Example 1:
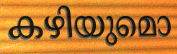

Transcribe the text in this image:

കഴിയുമൊ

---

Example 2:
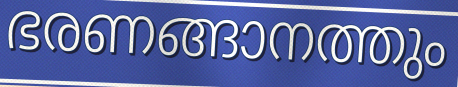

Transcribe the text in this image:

ഭരണങ്ങാനത്തും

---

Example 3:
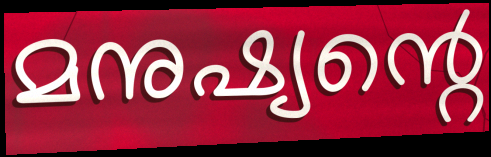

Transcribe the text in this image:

മനുഷ്യന്റെ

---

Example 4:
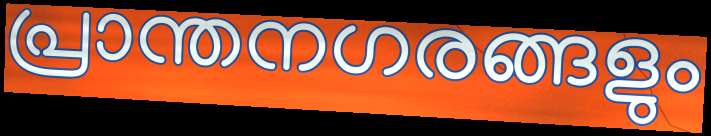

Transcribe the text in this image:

പ്രാന്തനഗരങ്ങളും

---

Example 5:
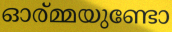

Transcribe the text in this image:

ഓര്മ്മയുണ്ടോ